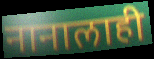
नानालाही